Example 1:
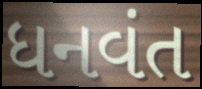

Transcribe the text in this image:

ધનવંત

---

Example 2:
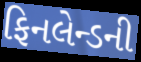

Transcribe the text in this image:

ફિનલેન્ડની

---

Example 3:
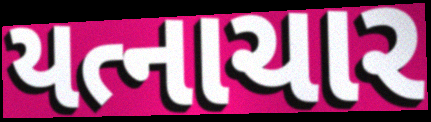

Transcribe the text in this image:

યત્નાચાર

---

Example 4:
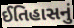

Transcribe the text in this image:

ઈતિહાસનું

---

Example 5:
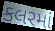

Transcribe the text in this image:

કલરમાં